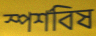
স্পর্শবিষ